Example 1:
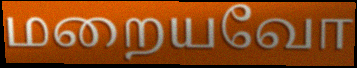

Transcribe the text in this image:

மறையவோ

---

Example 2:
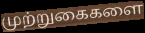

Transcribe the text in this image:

முற்றுகைகளை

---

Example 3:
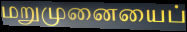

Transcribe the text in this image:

மறுமுனையைப்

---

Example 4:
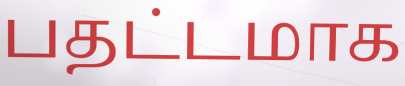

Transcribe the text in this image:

பதட்டமாக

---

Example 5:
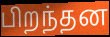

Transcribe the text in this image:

பிறந்தன